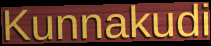
Kunnakudi